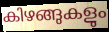
കിഴങ്ങുകളും